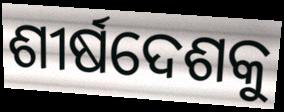
ଶୀର୍ଷଦେଶକୁ